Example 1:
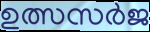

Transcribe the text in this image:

ഉത്സസർജ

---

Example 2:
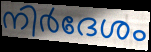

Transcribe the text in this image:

നിർദേശം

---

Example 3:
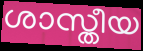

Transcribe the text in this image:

ശാസ്തീയ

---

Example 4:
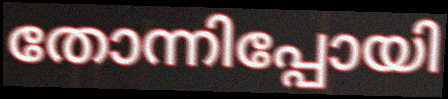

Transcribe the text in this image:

തോന്നിപ്പോയി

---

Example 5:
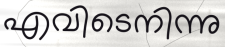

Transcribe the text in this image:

എവിടെനിന്നു